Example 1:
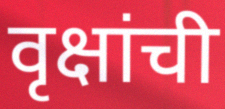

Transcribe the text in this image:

वृक्षांची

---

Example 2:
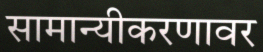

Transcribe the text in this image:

सामान्यीकरणावर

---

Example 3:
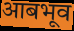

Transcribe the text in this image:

आबभूव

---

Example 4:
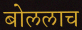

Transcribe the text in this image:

बोललाच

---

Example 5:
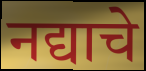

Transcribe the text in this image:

नद्याचे